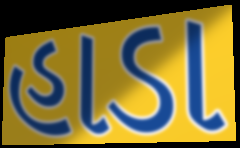
હાડા